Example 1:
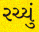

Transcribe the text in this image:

રચ્યું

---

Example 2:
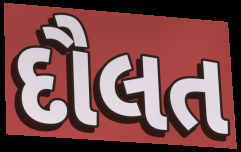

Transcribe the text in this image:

દૌલત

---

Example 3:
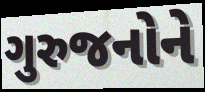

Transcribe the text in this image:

ગુરુજનોને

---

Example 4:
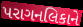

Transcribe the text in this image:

પરાગનલિકાને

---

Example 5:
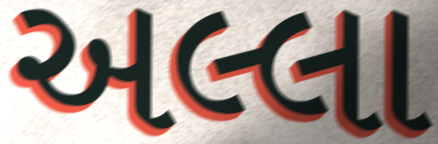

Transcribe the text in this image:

અલ્લા